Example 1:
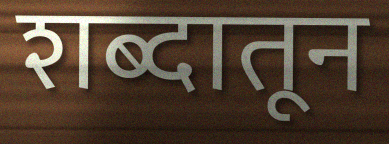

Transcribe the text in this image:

शब्दातून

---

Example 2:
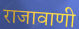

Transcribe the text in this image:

राजावाणी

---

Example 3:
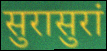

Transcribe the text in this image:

सुरासुरां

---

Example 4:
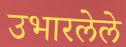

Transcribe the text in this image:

उभारलेले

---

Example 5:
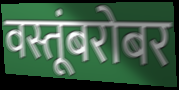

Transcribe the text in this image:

वस्तूंबरोबर